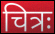
चित्रः